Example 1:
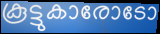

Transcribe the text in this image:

കൂട്ടുകാരോടോ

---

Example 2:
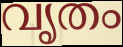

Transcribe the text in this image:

വൃതം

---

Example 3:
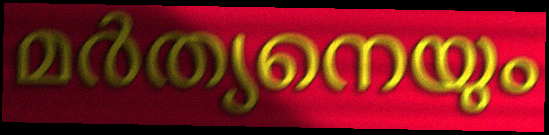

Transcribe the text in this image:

മർത്യനെയും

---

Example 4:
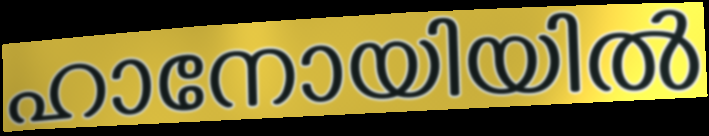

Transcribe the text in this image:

ഹാനോയിയിൽ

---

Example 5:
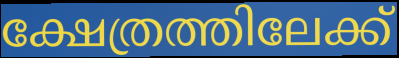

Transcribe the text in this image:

ക്ഷേത്രത്തിലേക്ക്